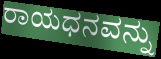
ರಾಯಧನವನ್ನು